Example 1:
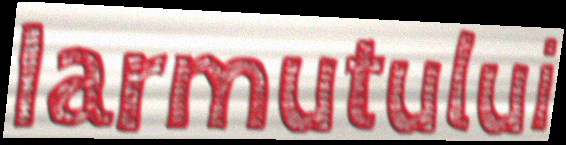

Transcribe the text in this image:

Iarmutului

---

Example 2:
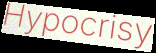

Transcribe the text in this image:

Hypocrisy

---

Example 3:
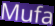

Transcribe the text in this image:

Mufa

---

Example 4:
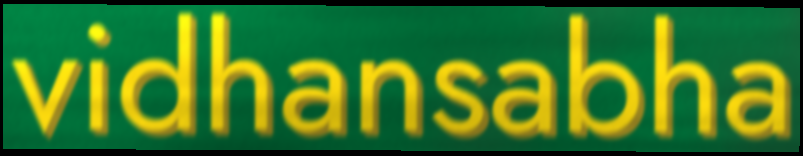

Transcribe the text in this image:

vidhansabha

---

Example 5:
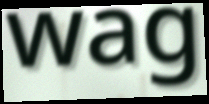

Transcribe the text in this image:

wag